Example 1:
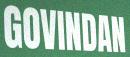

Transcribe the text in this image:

GOVINDAN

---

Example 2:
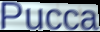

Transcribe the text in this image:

Pucca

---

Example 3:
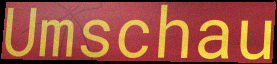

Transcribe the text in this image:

Umschau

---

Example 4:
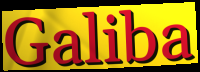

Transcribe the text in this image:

Galiba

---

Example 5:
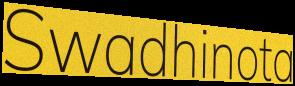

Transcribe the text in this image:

Swadhinota